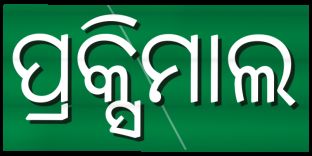
ପ୍ରକ୍ସିମାଲ